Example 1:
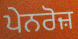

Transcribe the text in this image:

ਪੇਨਰੋਜ਼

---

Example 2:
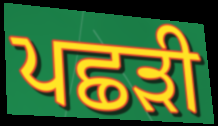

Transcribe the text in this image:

ਪਛੜੀ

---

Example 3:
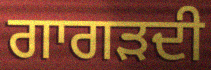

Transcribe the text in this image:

ਗਾਗੜਦੀ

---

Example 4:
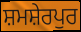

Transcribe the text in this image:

ਸ਼ਮਸ਼ੇਰਪੁਰ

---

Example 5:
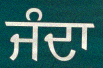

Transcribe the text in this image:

ਜੰਦਾ